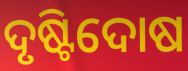
ଦୃଷ୍ଟିଦୋଷ